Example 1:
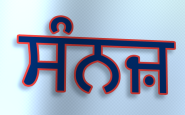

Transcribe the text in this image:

ਸੰਨਜ਼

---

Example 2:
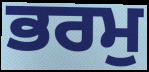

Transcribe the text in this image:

ਭਰਮੁ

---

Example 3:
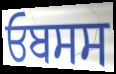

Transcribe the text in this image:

ਓਬਸਸ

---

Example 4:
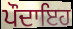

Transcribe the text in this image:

ਪੌਦਾਇਹ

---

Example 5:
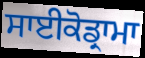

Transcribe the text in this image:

ਸਾਈਕੋਡ੍ਰਾਮਾ